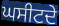
ਘਸੀਟਦੇ